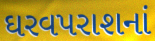
ઘરવપરાશનાં